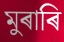
মুৰাৰি